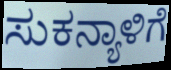
ಸುಕನ್ಯಾಳಿಗೆ